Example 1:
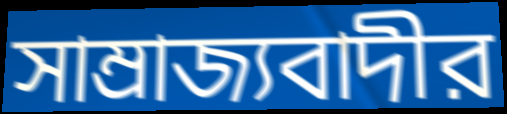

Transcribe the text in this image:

সাম্রাজ্যবাদীর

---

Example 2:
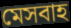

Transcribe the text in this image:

মেসবাহ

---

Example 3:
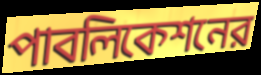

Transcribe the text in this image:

পাবলিকেশনের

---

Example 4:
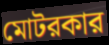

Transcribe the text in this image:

মোটরকার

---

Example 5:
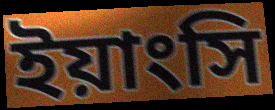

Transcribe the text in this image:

ইয়াংসি